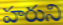
హరుని